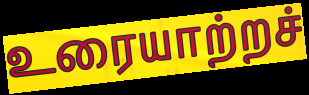
உரையாற்றச்